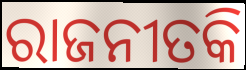
ରାଜନୀତକି